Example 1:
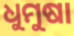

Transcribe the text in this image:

ଧୁମୁଷା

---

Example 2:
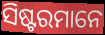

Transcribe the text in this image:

ସିଷ୍ଟରମାନେ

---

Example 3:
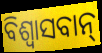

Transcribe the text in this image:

ବିଶ୍ଵାସବାନ୍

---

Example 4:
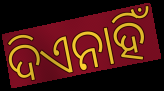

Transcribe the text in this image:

ଦିଏନାହିଁ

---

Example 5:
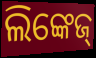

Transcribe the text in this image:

ଲିଙ୍କେଜ୍